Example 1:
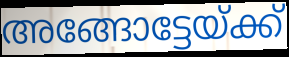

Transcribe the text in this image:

അങ്ങോട്ടേയ്ക്ക്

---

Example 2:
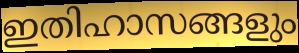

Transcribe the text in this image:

ഇതിഹാസങ്ങളും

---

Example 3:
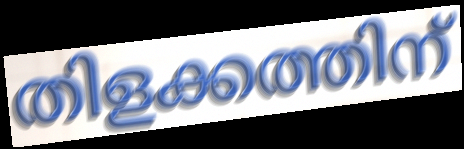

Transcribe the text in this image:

തിളക്കത്തിന്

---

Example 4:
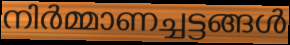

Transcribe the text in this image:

നിർമ്മാണച്ചട്ടങ്ങൾ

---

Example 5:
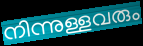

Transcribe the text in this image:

നിന്നുള്ളവരും